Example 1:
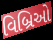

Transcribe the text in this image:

વિબ્રિઓ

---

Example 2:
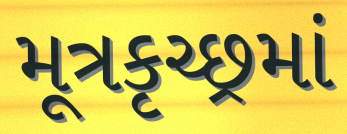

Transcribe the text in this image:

મૂત્રકૃચ્છ્રમાં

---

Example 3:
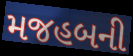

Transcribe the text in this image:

મજહબની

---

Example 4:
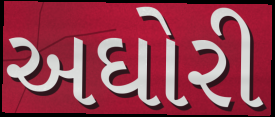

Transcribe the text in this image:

અઘોરી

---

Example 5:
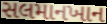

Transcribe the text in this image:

સલમાનખાન